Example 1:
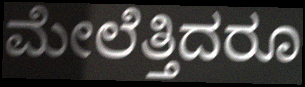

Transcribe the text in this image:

ಮೇಲೆತ್ತಿದರೂ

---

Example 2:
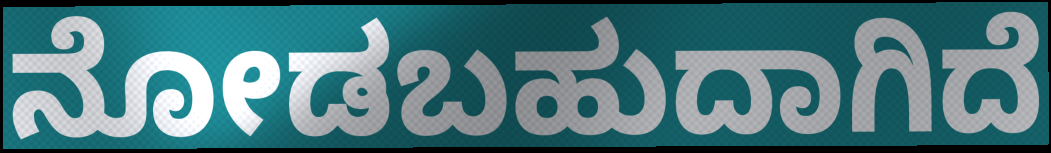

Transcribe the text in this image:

ನೋಡಬಹುದಾಗಿದೆ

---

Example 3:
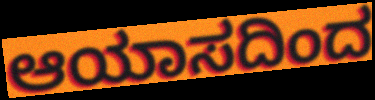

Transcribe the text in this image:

ಆಯಾಸದಿಂದ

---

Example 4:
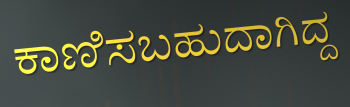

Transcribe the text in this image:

ಕಾಣಿಸಬಹುದಾಗಿದ್ದ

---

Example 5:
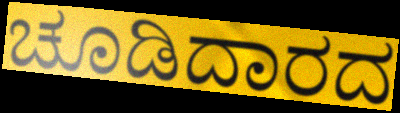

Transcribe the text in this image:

ಚೂಡಿದಾರದ